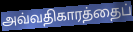
அவ்வதிகாரத்தைப்